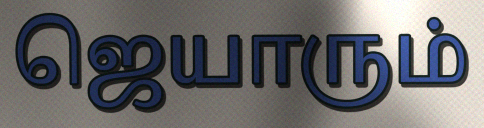
ஜெயாரும்